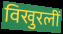
विखुरलीं